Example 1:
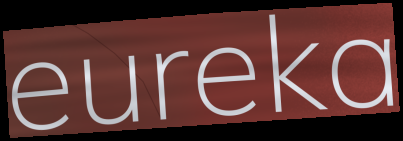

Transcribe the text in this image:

eureka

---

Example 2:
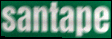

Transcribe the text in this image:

santape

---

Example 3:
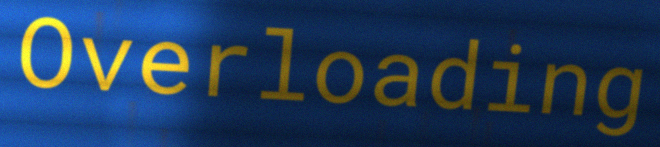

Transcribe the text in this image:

Overloading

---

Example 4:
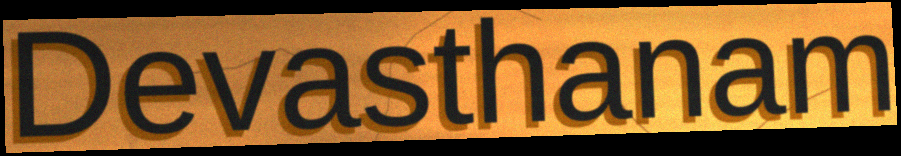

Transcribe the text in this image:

Devasthanam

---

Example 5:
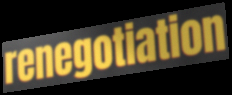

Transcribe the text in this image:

renegotiation